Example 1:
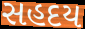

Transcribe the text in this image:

સહદય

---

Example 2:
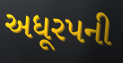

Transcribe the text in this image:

અધૂરપની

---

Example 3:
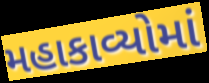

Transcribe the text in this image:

મહાકાવ્યોમાં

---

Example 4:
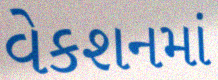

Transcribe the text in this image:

વેકશનમાં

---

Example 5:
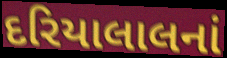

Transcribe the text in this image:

દરિયાલાલનાં